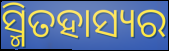
ସ୍ମିତହାସ୍ୟର